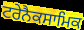
ਟਰੇਨੈਕਸਾਮਿਕ